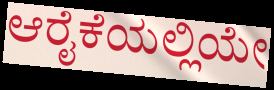
ಆರೈಕೆಯಲ್ಲಿಯೇ